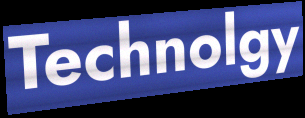
Technolgy